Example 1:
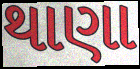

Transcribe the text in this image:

થાણા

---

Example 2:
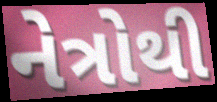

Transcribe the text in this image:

નેત્રોથી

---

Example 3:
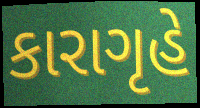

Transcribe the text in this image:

કારાગૃહે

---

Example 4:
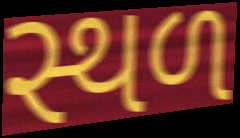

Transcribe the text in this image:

સ્થળ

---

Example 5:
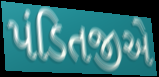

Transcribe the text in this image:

પંડિતજીએ